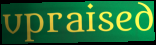
upraised